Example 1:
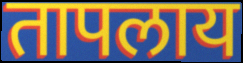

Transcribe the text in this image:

तापलाय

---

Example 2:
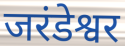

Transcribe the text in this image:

जरंडेश्वर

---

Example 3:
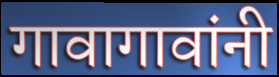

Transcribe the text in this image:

गावागावांनी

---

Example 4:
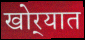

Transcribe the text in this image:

खोर्यात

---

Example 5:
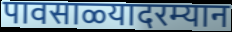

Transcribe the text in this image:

पावसाळ्यादरम्यान